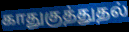
காதுகுத்துதல்